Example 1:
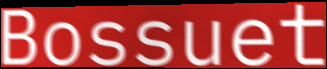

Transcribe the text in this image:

Bossuet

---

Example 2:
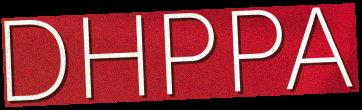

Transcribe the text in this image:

DHPPA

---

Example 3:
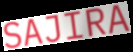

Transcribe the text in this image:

SAJIRA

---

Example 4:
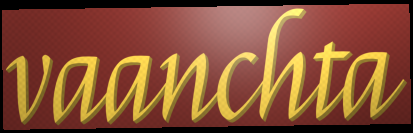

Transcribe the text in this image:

vaanchta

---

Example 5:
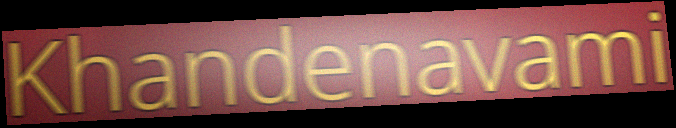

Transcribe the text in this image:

Khandenavami